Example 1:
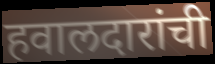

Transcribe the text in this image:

हवालदारांची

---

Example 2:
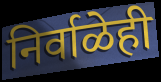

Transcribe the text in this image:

निर्वाळेही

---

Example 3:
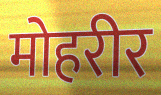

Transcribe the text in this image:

मोहरीर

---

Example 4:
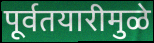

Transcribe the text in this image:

पूर्वतयारीमुळे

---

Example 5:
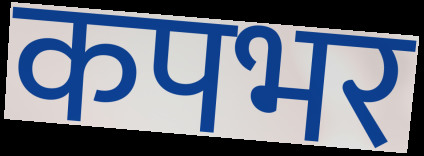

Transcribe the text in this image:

कपभर